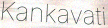
Kankavati